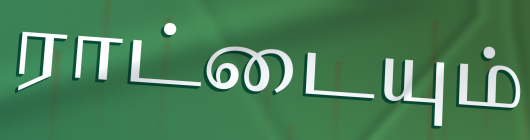
ராட்டையும்